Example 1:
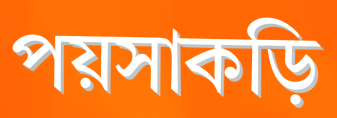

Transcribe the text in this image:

পয়সাকড়ি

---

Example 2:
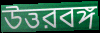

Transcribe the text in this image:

উত্তরবঙ্গ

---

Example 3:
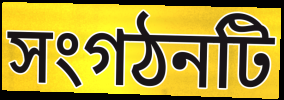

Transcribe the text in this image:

সংগঠনটি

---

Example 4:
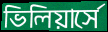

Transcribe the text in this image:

ভিলিয়ার্সে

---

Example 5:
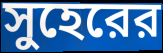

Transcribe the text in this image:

সুহেরের